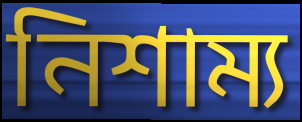
নিশাম্য